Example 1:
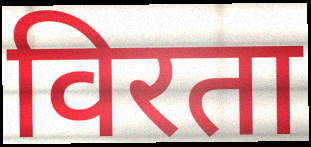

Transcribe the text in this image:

विरता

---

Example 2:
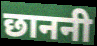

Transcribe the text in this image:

छाननी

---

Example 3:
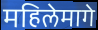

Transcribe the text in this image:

महिलेमागे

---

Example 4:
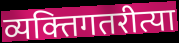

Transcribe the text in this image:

व्यक्तिगतरीत्या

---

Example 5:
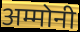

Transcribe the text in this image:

अम्मोनी